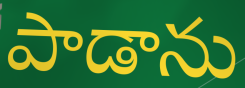
పాడాను